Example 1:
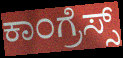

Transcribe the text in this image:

ಕಾಂಗ್ರೆಸ್ಸ್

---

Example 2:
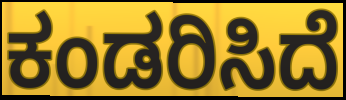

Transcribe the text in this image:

ಕಂಡರಿಸಿದೆ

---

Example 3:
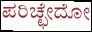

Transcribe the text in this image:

ಪರಿಚ್ಛೇದೋ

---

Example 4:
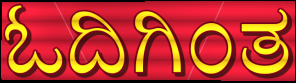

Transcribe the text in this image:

ಓದಿಗಿಂತ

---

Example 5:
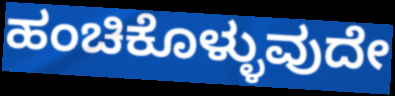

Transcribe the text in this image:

ಹಂಚಿಕೊಳ್ಳುವುದೇ